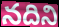
నదిని